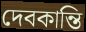
দেবকান্তি